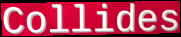
Collides